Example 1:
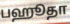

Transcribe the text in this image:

பஹூதா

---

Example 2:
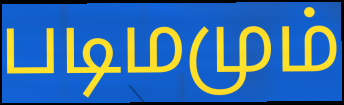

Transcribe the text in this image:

படிமமும்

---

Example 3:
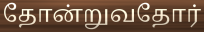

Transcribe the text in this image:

தோன்றுவதோர்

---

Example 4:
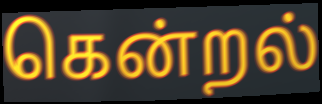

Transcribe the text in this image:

கென்றல்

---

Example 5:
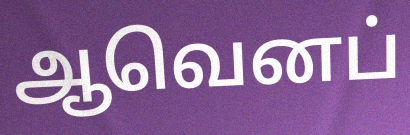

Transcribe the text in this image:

ஆவெனப்